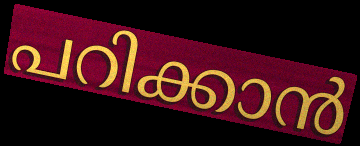
പറിക്കാൻ